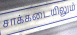
சாக்கடையிலும்